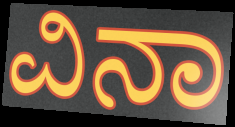
ವಿನಾ